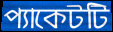
প্যাকেটটি